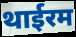
थाईरम